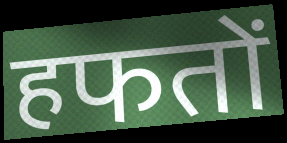
हफतों